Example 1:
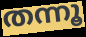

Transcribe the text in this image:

തന്നൂ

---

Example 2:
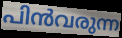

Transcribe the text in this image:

പിൻവരുന്ന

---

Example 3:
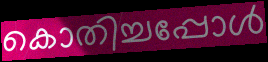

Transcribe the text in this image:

കൊതിച്ചപ്പോൾ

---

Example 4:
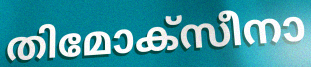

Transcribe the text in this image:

തിമോക്സീനാ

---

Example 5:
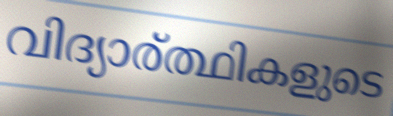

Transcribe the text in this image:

വിദ്യാര്ത്ഥികളുടെ